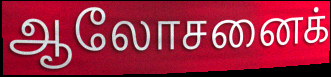
ஆலோசனைக்